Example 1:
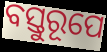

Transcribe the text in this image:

ବସ୍ତୁରୂପେ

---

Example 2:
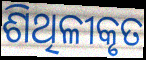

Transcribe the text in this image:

ଶିଥିଳୀକୃତ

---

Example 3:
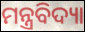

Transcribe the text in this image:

ମନ୍ତ୍ରବିଦ୍ୟା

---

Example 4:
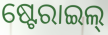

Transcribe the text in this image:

ଷ୍ଟେରାଇଲ୍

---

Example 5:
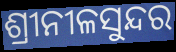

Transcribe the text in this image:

ଶ୍ରୀନୀଳସୁନ୍ଦର